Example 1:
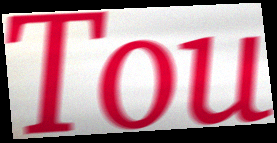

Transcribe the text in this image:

Tou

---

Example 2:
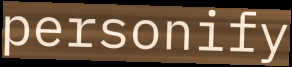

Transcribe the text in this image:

personify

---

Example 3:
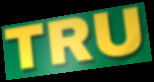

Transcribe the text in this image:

TRU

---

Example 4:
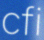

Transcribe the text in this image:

cfi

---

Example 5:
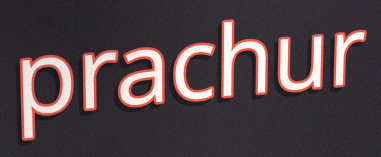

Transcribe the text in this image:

prachur